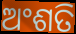
ଅଂଶତି